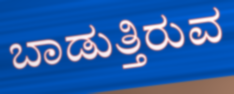
ಬಾಡುತ್ತಿರುವ